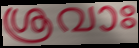
ശ്രവാഃ